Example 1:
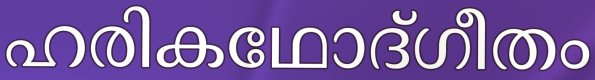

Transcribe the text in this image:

ഹരികഥോദ്ഗീതം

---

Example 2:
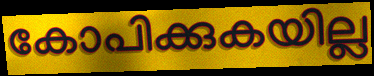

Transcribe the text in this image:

കോപിക്കുകയില്ല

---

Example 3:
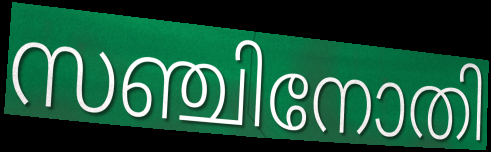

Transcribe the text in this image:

സഞ്ചിനോതി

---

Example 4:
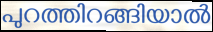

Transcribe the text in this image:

പുറത്തിറങ്ങിയാൽ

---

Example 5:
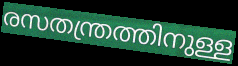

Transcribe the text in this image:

രസതന്ത്രത്തിനുള്ള